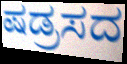
ಷಡ್ರಸದ